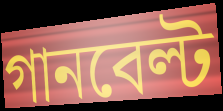
গানবেল্ট